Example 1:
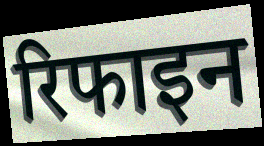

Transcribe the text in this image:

रिफाइन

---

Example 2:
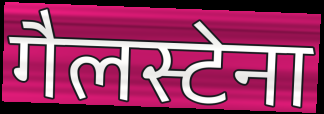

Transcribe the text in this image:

गैलस्टेना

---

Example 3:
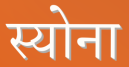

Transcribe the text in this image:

स्योना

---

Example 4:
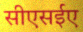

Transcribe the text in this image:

सीएसईए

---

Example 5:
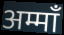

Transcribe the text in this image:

अम्माँ